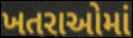
ખતરાઓમાં